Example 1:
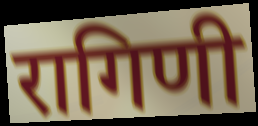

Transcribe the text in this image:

रागिणी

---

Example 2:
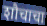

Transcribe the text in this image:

शौचाचा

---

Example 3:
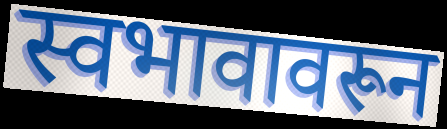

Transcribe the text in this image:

स्वभावावरून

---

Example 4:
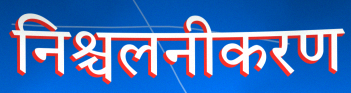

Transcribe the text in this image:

निश्चलनीकरण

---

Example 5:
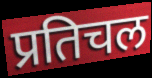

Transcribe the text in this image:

प्रतिचल